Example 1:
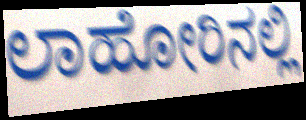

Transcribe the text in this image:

ಲಾಹೋರಿನಲ್ಲಿ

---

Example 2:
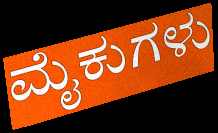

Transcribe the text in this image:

ಮೈಕುಗಳು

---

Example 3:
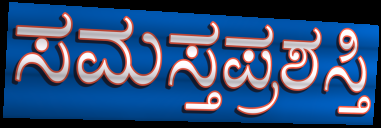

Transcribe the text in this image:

ಸಮಸ್ತಪ್ರಶಸ್ತಿ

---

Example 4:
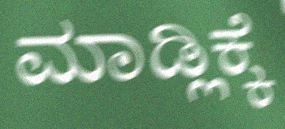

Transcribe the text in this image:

ಮಾಡ್ಲಿಕ್ಕೆ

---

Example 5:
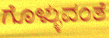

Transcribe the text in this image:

ಗೊಳ್ಳುವಂತೆ